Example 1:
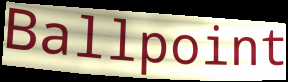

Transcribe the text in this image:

Ballpoint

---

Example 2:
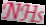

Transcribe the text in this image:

NHs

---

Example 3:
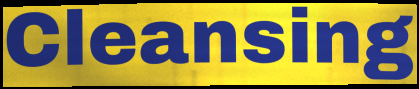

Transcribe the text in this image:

Cleansing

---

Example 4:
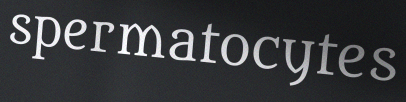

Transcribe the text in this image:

spermatocytes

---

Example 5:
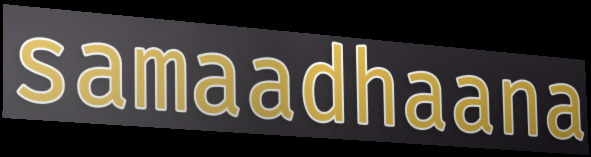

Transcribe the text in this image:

samaadhaana